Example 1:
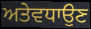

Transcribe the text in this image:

ਅਤੇਵਧਾਉਣ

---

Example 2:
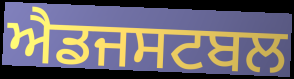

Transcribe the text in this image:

ਐਡਜਸਟਬਲ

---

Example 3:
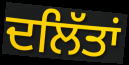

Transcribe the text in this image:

ਦਲਿੱਤਾਂ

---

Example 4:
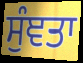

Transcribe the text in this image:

ਸੁੰਞਤਾ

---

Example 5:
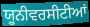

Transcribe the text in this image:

ਯੂਨੀਵਰਸੀਟੀਆਂ